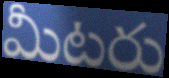
మీటరు